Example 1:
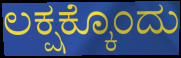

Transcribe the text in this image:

ಲಕ್ಷಕ್ಕೊಂದು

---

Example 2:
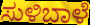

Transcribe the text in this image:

ಸುಳಿಬಾಳೆ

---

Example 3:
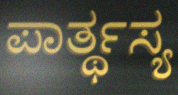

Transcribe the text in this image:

ಪಾರ್ತ್ಥಸ್ಯ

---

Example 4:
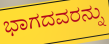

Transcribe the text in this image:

ಭಾಗದವರನ್ನು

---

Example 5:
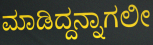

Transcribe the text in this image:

ಮಾಡಿದ್ದನ್ನಾಗಲೀ